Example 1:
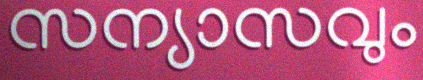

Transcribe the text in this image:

സന്യാസവും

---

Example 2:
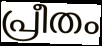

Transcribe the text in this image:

പ്രീതം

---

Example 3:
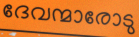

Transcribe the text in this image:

ദേവന്മാരോടു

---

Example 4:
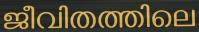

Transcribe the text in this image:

ജീവിതത്തിലെ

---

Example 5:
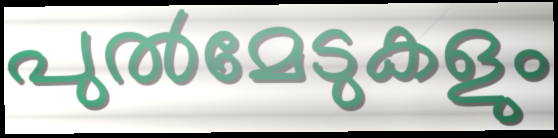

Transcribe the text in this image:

പുൽമേടുകളും